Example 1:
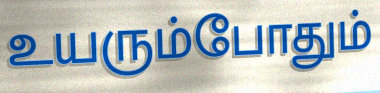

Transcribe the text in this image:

உயரும்போதும்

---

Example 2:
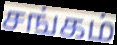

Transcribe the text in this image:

சங்கம்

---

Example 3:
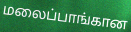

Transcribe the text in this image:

மலைப்பாங்கான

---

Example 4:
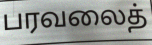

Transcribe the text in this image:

பரவலைத்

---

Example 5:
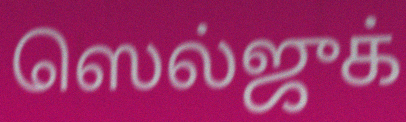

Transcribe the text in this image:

ஸெல்ஜுக்